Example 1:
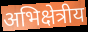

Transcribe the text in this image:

अभिक्षेत्रीय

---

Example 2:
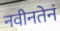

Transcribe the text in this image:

नवीनतेनं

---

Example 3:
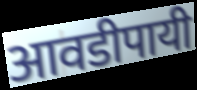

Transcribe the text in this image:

आवडीपायी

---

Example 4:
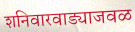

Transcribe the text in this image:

शनिवारवाड्याजवळ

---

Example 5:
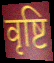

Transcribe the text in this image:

वृष्टि